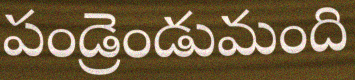
పండ్రెండుమంది